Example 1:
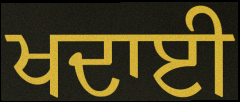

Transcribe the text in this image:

ਖਦਾਈ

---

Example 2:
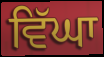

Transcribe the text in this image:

ਵਿੱਘਾ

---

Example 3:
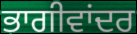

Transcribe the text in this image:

ਭਾਗੀਵਾਂਦਰ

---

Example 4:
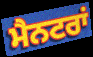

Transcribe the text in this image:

ਮੈਨਟਰਾਂ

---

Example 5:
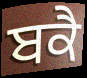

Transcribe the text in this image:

ਬਕੈ